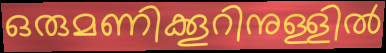
ഒരുമണിക്കൂറിനുള്ളിൽ